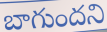
బాగుందని